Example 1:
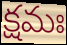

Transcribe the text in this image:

క్షమః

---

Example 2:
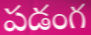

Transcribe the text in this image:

పడంగ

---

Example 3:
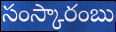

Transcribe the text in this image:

సంస్కారంబు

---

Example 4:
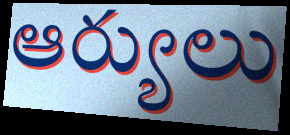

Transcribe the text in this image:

ఆర్యులు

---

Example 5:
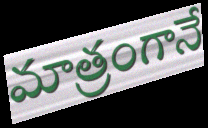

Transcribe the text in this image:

మాత్రంగానే